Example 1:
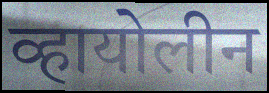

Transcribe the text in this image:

व्हायोलीन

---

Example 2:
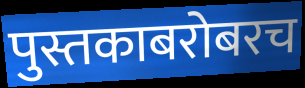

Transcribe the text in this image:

पुस्तकाबरोबरच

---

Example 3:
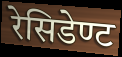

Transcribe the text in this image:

रेसिडेण्ट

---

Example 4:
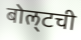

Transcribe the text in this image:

बोल्टची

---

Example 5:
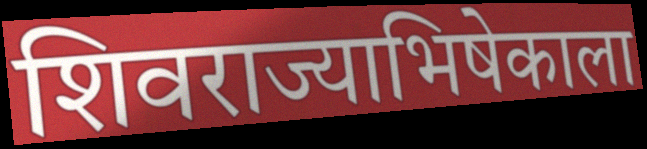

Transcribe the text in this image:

शिवराज्याभिषेकाला